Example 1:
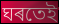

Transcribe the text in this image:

ঘৰতেই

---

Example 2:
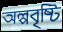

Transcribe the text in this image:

অল্পবৃষ্টি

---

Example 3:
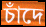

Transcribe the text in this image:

চাঁদে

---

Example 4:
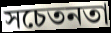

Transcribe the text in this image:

সচেতনতা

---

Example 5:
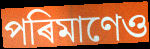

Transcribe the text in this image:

পৰিমাণেও